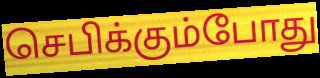
செபிக்கும்போது